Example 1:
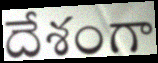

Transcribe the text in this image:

దేశంగా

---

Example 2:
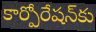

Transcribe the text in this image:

కార్పోరేషన్‌కు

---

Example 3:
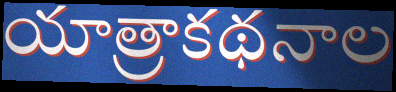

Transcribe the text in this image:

యాత్రాకథనాల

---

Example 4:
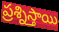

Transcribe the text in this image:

ప్రశ్నిస్తాయి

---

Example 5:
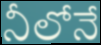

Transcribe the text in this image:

నీలోనే